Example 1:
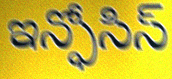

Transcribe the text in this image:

ఇన్ఫోసిస్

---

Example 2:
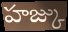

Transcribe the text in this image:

హజ్కు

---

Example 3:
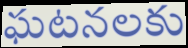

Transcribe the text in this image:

ఘటనలకు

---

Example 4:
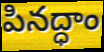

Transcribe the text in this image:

పినద్ధాం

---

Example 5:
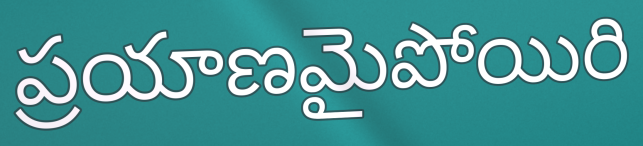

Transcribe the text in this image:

ప్రయాణమైపోయిరి